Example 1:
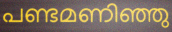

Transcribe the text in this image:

പണ്ടമണിഞ്ഞു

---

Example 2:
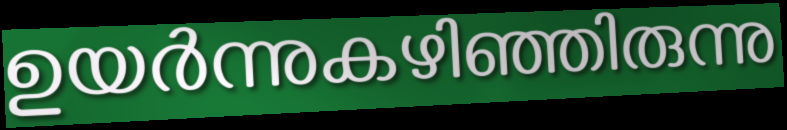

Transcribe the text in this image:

ഉയർന്നുകഴിഞ്ഞിരുന്നു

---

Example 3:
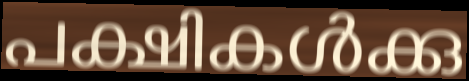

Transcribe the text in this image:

പക്ഷികൾക്കു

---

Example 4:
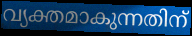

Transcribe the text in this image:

വ്യക്തമാകുന്നതിന്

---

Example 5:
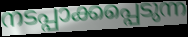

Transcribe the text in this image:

നടപ്പാക്കപ്പെടുന്ന